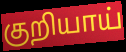
குறியாய்